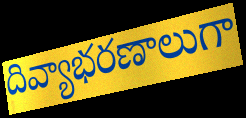
దివ్యాభరణాలుగా